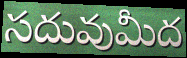
సదువుమీద